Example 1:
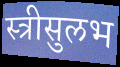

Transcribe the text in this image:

स्त्रीसुलभ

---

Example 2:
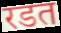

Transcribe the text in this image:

रडत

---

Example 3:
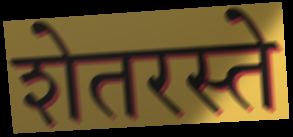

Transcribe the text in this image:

शेतरस्ते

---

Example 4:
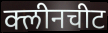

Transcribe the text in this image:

क्लीनचीट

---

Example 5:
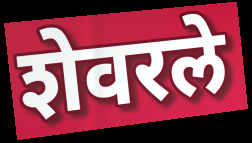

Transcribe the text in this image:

शेवरले